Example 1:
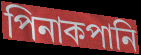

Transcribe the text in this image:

পিনাকপানি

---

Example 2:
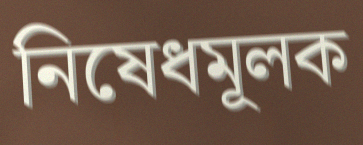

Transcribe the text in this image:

নিষেধমূলক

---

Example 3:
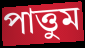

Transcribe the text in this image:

পাত্তুম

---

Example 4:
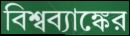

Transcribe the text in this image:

বিশ্বব্যাঙ্কের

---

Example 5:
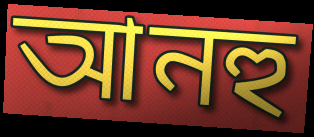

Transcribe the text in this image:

আনহু